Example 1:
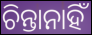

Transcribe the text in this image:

ଚିନ୍ତାନାହିଁ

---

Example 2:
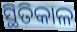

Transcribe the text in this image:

ସ୍ଥିତିକାଳ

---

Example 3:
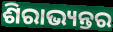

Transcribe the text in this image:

ଶିରାଭ୍ୟନ୍ତର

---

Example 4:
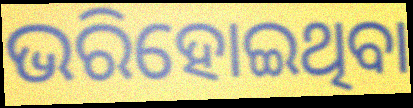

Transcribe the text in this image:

ଭରିହୋଇଥିବା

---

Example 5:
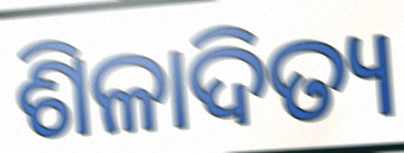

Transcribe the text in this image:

ଶିଳାଦିତ୍ୟ